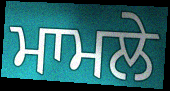
ਮਾਮਲੇ